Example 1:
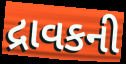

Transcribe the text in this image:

દ્રાવકની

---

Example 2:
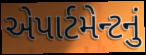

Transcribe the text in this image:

એપાર્ટમેન્ટનું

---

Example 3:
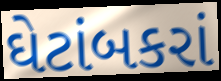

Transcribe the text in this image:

ઘેટાંબકરાં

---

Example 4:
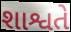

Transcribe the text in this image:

શાશ્વતે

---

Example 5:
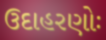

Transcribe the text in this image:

ઉદાહરણોઃ